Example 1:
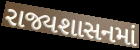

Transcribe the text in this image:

રાજ્યશાસનમાં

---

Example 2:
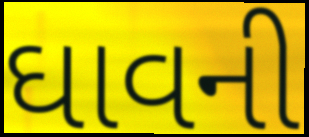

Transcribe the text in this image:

ઘાવની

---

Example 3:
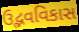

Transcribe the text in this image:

ઉદ્ભવવિકાસ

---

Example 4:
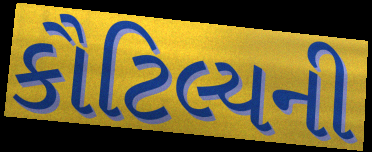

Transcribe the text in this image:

કૌટિલ્યની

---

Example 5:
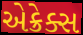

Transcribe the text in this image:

એક્રેક્સ